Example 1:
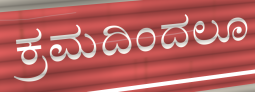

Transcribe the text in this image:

ಕ್ರಮದಿಂದಲೂ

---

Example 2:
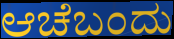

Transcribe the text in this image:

ಆಚೆಬಂದು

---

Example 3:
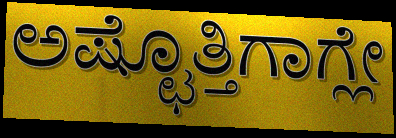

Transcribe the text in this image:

ಅಷ್ಟೊತ್ತಿಗಾಗ್ಲೇ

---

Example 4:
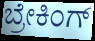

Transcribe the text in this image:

ಬ್ರೇಕಿಂಗ್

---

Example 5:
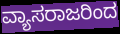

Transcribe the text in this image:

ವ್ಯಾಸರಾಜರಿಂದ